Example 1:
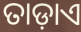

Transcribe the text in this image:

ତାଡ଼ାଏ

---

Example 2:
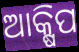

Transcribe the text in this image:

ଆକ୍ଷିପ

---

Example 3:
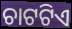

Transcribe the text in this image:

ଚାଟଟିଏ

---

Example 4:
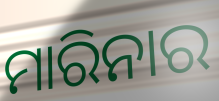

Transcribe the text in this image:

ମାରିନାର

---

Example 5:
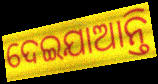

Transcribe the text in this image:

ଦେଇଯାଆନ୍ତି